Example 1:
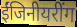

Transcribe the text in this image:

ईंजिनीयरींग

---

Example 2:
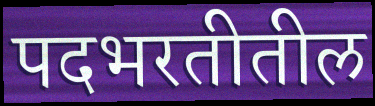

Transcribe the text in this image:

पदभरतीतील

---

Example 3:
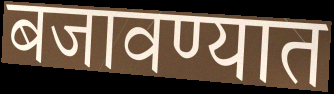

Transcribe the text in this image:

बजावण्यात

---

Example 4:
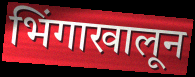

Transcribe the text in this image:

भिंगाखालून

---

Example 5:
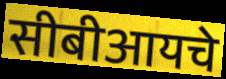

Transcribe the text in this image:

सीबीआयचे